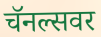
चॅनल्सवर